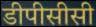
डीपीसीसी